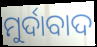
ମୁର୍ଦାବାଦ